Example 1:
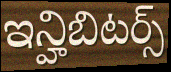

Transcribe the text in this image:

ఇన్హిబిటర్స్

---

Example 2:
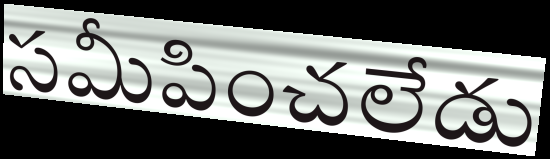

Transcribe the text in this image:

సమీపించలేడు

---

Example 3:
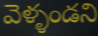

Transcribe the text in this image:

వెళ్ళండని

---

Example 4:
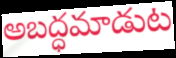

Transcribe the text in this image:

అబద్ధమాడుట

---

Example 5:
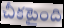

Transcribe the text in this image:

చీకటైంది